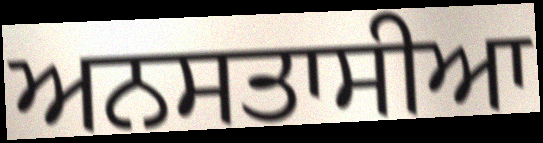
ਅਨਸਤਾਸੀਆ